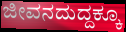
ಜೀವನದುದ್ದಕ್ಕೂ